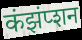
कंझंप्शन